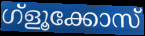
ഗ്ളൂക്കോസ്